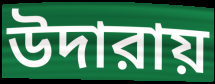
উদারায়